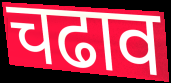
चढाव